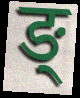
ङ्